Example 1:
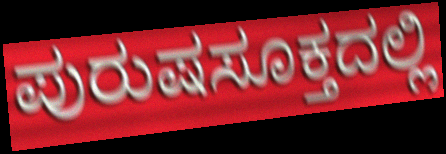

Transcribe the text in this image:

ಪುರುಷಸೂಕ್ತದಲ್ಲಿ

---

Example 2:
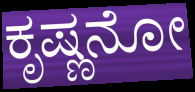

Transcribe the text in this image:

ಕೃಷ್ಣನೋ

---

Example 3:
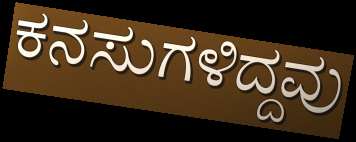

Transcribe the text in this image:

ಕನಸುಗಳಿದ್ದವು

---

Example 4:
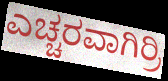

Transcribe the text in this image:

ಎಚ್ಚರವಾಗಿರ್ರಿ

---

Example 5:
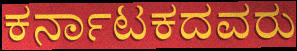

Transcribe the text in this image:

ಕರ್ನಾಟಕದವರು